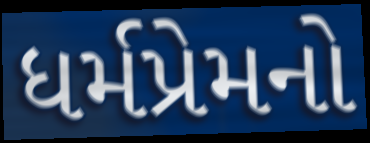
ધર્મપ્રેમનો